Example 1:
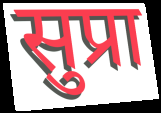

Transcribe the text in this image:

सुप्रा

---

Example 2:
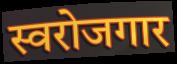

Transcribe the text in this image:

स्वरोजगार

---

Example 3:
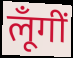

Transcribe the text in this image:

लूँगीं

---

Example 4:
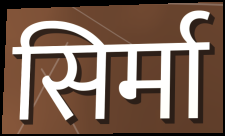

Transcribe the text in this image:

सिर्मा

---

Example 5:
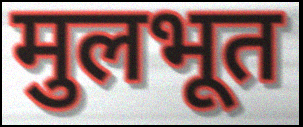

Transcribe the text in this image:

मुलभूत